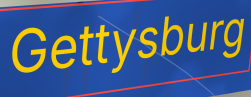
Gettysburg